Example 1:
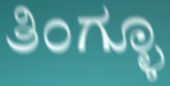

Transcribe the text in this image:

ತಿಂಗ್ಳೂ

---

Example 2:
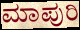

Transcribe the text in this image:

ಮಾಪುರಿ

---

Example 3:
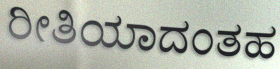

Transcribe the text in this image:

ರೀತಿಯಾದಂತಹ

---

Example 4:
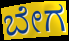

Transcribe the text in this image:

ಬೇಗ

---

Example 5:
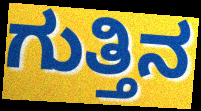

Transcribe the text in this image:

ಗುತ್ತಿನ